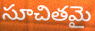
సూచితమై